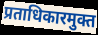
प्रताधिकारमुक्त